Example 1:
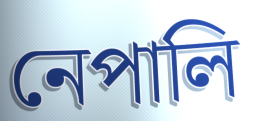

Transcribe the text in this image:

নেপালি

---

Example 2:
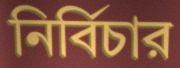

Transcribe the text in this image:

নির্বিচার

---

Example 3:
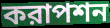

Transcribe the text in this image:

করাপশন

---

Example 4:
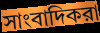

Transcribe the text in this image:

সাংবাদিকরা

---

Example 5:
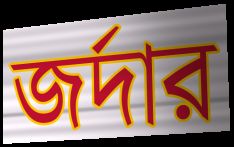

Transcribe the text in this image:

জর্দার